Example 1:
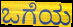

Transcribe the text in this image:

ಒಗೆಯ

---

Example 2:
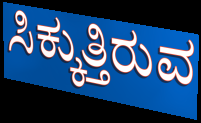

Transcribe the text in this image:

ಸಿಕ್ಕುತ್ತಿರುವ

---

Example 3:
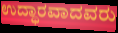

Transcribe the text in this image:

ಉದ್ಧಾರವಾದವರು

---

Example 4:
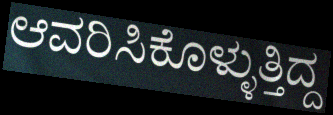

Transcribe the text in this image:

ಆವರಿಸಿಕೊಳ್ಳುತ್ತಿದ್ದ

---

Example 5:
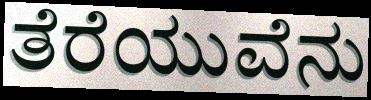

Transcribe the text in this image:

ತೆರೆಯುವೆನು